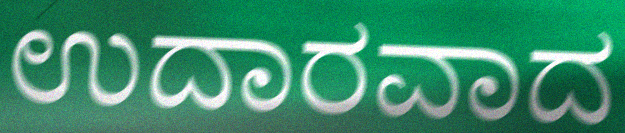
ಉದಾರವಾದ